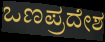
ಒಣಪ್ರದೇಶ